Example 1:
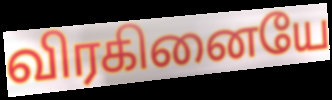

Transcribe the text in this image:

விரகினையே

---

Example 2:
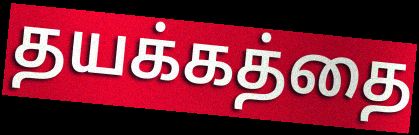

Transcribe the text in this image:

தயக்கத்தை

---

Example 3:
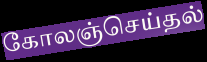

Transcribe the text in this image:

கோலஞ்செய்தல்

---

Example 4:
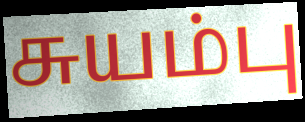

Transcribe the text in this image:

சுயம்பு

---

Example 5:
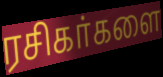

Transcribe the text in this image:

ரசிகர்களை